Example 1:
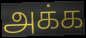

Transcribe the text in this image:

அக்க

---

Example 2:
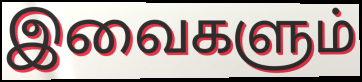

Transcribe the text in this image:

இவைகளும்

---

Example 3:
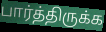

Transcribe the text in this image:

பார்த்திருக்க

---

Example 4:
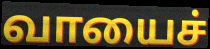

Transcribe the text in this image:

வாயைச்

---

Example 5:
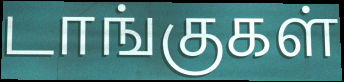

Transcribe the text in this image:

டாங்குகள்